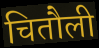
चितौली